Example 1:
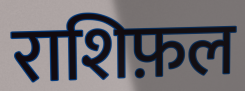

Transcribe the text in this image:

राशिफ़ल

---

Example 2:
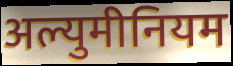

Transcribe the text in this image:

अल्युमीनियम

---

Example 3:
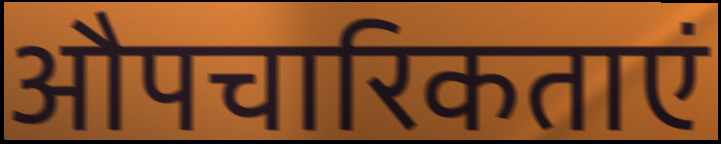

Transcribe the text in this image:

औपचारिकताएं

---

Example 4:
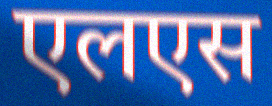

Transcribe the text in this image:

एलएस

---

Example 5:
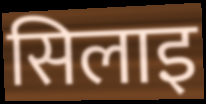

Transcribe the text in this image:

सिलाइ